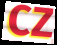
cz